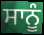
ਸਾਨੂੰ